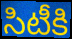
సిటీకి